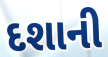
દશાની